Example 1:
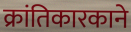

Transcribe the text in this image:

क्रांतिकारकाने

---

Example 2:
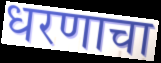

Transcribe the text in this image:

धरणाचा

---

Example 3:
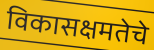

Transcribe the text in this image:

विकासक्षमतेचे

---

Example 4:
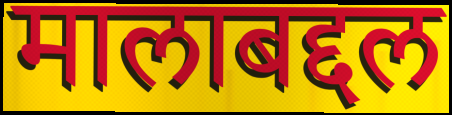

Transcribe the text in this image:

मालाबद्दल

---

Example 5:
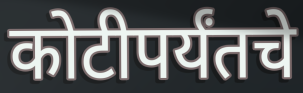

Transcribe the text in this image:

कोटीपर्यंतचे